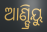
ଆଣ୍ଡ୍ରିୟୁ